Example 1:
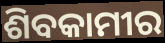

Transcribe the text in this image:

ଶିବକାମୀର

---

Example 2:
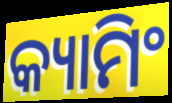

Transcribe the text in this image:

କ୍ୟାମିଂ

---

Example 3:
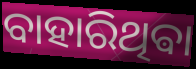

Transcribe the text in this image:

ବାହାରିଥିଵା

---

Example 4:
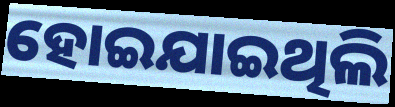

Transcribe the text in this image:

ହୋଇଯାଇଥିଲି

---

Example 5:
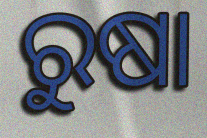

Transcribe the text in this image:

ରୁଷା